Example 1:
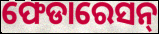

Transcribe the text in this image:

ଫେଡାରେସନ୍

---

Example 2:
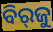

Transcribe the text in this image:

ବିର୍‌ଜୁ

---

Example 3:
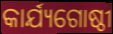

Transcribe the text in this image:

କାର୍ଯ୍ୟଗୋଷ୍ଠୀ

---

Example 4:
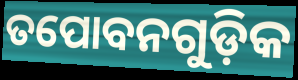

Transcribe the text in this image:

ତପୋବନଗୁଡ଼ିକ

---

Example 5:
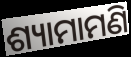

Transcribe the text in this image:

ଶ୍ୟାମାମଣି